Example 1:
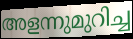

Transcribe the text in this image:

അളന്നുമുറിച്ച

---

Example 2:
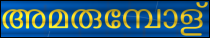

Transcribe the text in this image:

അമരുമ്പോള്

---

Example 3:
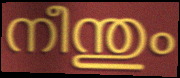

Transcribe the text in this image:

നീന്തും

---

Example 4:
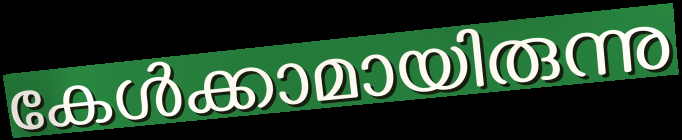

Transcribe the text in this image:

കേൾക്കാമായിരുന്നു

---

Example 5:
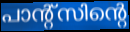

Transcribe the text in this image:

പാന്റ്സിന്റെ